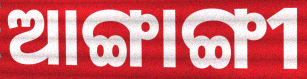
ଆଙ୍ଗାଙ୍ଗୀ